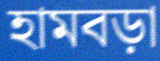
হামবড়া